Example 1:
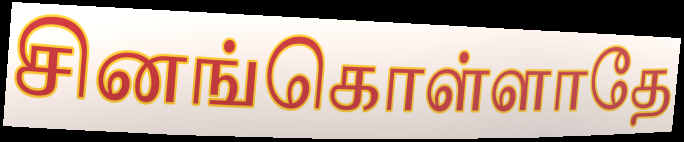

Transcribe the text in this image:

சினங்கொள்ளாதே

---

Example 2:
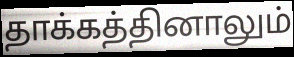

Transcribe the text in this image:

தாக்கத்தினாலும்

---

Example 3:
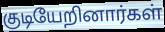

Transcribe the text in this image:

குடியேறினார்கள்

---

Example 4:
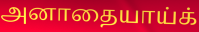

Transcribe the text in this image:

அனாதையாய்க்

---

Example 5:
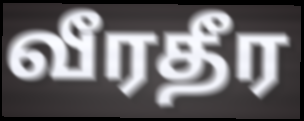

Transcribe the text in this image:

வீரதீர